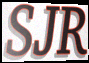
SJR